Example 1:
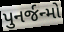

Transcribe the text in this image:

પુનર્જન્મો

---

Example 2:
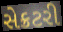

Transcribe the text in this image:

સેક્રટરી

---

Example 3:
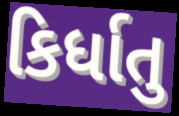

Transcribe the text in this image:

કિર્ધાતુ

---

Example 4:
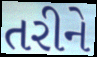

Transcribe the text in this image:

તરીને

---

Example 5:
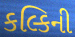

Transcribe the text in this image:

કલ્કિની